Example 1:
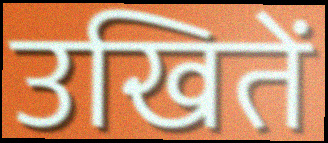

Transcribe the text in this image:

उखितें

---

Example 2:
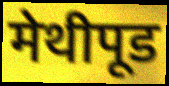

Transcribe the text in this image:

मेथीपूड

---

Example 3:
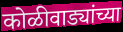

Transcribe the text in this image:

कोळीवाड्यांच्या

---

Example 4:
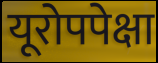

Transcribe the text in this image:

यूरोपपेक्षा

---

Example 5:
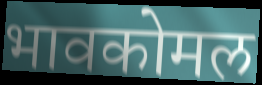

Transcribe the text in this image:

भावकोमल